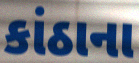
કાંઠાના